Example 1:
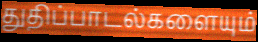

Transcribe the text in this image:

துதிப்பாடல்களையும்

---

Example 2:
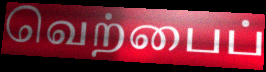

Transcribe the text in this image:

வெற்பைப்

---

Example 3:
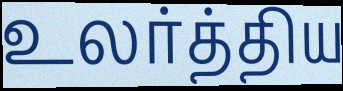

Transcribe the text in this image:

உலர்த்திய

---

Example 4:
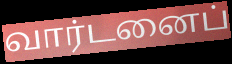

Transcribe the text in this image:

வார்டனைப்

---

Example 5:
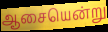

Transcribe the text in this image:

ஆசையென்று